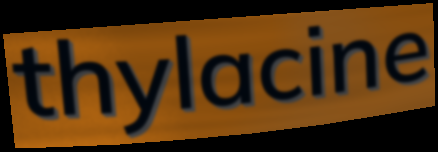
thylacine